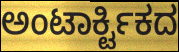
ಅಂಟಾರ್ಕ್ಟಿಕದ